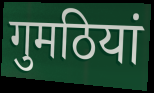
गुमठियां